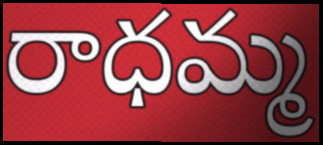
రాధమ్మ